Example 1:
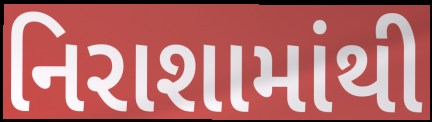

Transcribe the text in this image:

નિરાશામાંથી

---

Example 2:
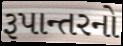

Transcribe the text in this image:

રૂપાન્તરનો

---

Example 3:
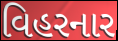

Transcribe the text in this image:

વિહરનાર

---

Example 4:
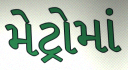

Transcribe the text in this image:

મેટ્રોમાં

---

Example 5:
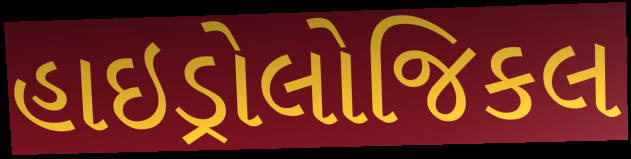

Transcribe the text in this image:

હાઇડ્રોલોજિકલ